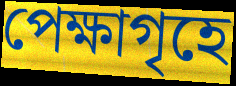
পেক্ষাগৃহে